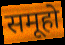
समूहो